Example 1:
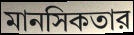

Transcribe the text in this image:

মানসিকতার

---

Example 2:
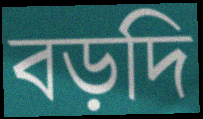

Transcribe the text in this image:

বড়দি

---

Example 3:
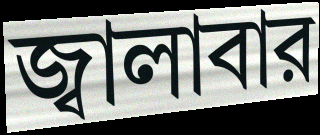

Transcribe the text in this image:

জ্বালাবার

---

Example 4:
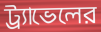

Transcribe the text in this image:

ট্র্যাভেলের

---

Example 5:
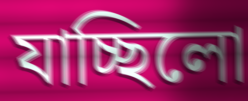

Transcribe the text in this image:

যাচ্ছিলো